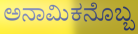
ಅನಾಮಿಕನೊಬ್ಬ